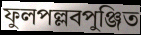
ফুলপল্লবপুঞ্জিত